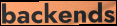
backends